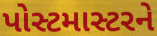
પોસ્ટમાસ્ટરને